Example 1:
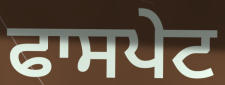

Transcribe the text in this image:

ਫਾਸਪੇਟ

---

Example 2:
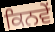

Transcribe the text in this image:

ਕਿਨਵੇਂ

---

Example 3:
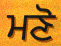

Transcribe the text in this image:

ਮਣੋ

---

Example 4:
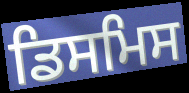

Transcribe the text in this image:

ਡਿਸਮਿਸ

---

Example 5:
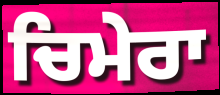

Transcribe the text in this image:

ਚਿਮੇਰਾ